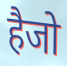
हैजो